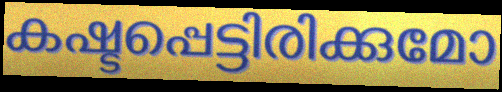
കഷ്ടപ്പെട്ടിരിക്കുമോ